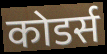
कोडर्स